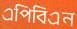
এপিবিএন